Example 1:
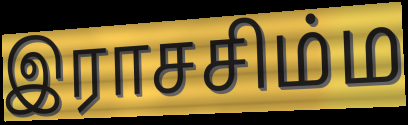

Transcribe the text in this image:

இராசசிம்ம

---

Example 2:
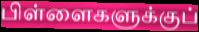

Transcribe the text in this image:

பிள்ளைகளுக்குப்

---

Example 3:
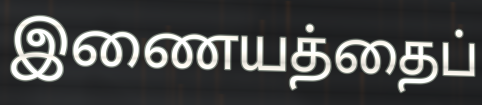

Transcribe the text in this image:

இணையத்தைப்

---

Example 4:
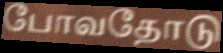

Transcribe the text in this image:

போவதோடு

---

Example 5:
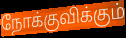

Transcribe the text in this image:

நோக்குவிக்கும்